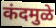
कंदमुळे